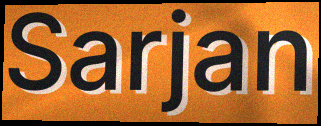
Sarjan